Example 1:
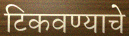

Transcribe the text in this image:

टिकवण्याचे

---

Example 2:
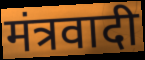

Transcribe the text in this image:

मंत्रवादी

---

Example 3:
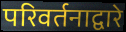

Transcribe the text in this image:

परिवर्तनाद्वारे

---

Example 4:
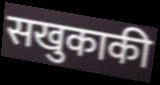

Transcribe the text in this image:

सखुकाकी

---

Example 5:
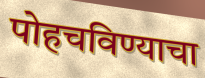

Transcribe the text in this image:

पोहचविण्याचा